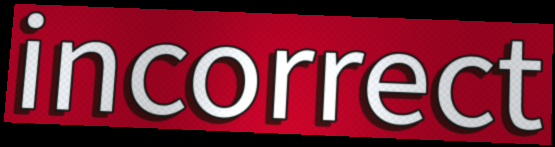
incorrect